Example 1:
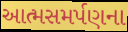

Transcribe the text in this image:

આત્મસમર્પણના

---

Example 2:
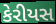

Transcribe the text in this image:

કેરીયસ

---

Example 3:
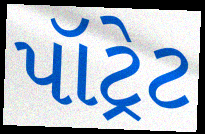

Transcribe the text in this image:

પૉટ્રેટ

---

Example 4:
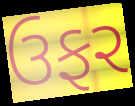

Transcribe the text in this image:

ઉફર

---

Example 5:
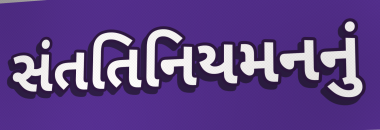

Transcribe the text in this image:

સંતતિનિયમનનું